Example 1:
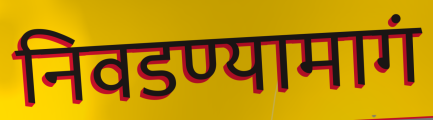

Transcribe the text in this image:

निवडण्यामागं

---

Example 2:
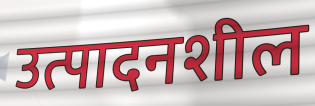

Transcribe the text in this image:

उत्पादनशील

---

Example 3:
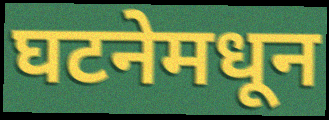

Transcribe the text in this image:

घटनेमधून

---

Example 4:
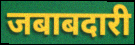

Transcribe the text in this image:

जबाबदारी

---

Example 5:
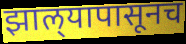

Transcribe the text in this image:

झाल्यापासूनच